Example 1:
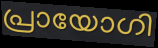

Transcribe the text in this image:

പ്രായോഗി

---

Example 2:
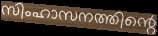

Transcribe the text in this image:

സിംഹാസനത്തിന്റെ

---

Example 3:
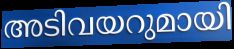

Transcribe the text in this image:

അടിവയറുമായി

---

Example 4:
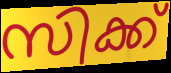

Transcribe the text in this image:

സിക്ക്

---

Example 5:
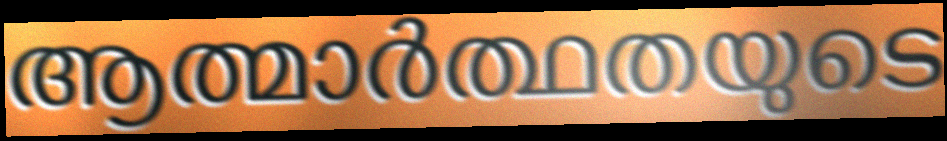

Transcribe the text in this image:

ആത്മാർത്ഥതയുടെ